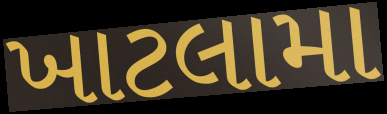
ખાટલામા